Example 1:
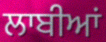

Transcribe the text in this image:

ਲਾਬੀਆਂ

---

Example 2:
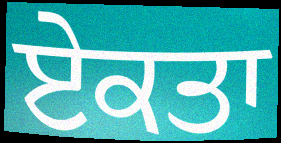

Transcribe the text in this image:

ਏਕਤਾ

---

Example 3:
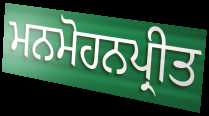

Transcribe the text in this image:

ਮਨਮੋਹਨਪ੍ਰੀਤ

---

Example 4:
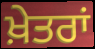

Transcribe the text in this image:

ਖ਼ੇਤਰਾਂ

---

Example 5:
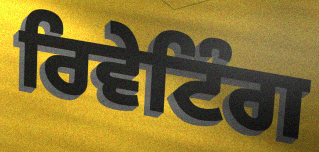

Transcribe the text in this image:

ਰਿਵੇਟਿੰਗ